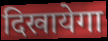
दिखायेगा